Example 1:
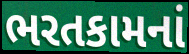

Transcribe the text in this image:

ભરતકામનાં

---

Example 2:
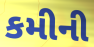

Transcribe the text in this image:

કમીની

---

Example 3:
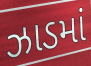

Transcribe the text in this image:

ઝાડમાં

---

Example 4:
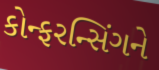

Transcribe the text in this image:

કોન્ફરન્સિંગને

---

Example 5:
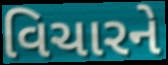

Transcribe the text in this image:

વિચારને